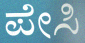
ಪೇಸಿ